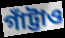
গাঁট্টাও